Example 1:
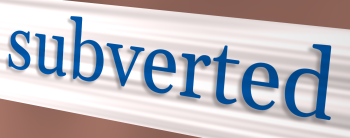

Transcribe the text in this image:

subverted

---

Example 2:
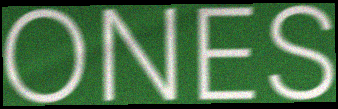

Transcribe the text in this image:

ONES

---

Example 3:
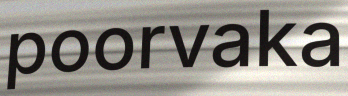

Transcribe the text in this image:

poorvaka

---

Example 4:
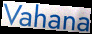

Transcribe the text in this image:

Vahana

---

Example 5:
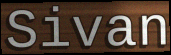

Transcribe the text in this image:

Sivan